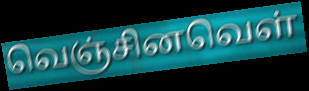
வெஞ்சினவெள்